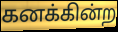
கனக்கின்ற